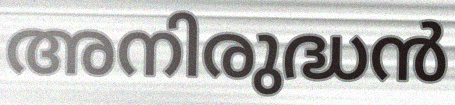
അനിരുദ്ധൻ